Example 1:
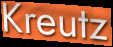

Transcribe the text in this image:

Kreutz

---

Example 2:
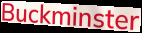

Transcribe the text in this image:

Buckminster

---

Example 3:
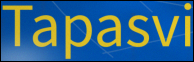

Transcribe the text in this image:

Tapasvi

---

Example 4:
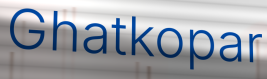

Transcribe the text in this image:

Ghatkopar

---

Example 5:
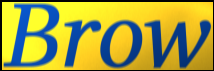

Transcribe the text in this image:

Brow